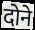
दोने